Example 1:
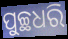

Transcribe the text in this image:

ପୁଚ୍ଛଧରି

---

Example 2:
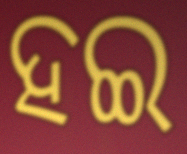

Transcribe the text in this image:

ହଇ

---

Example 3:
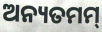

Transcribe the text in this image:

ଅନ୍ୟତମମ୍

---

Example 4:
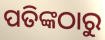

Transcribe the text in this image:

ପତିଙ୍କଠାରୁ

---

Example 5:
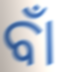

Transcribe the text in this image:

ବାଁ